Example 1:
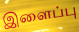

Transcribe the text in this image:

இளைப்பு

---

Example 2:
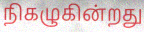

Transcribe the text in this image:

நிகழுகின்றது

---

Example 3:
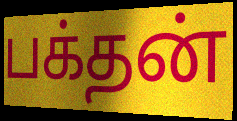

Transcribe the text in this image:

பக்தன்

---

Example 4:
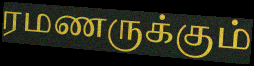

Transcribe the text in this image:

ரமணருக்கும்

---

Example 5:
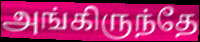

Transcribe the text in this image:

அங்கிருந்தே